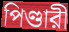
পিণ্ডারী